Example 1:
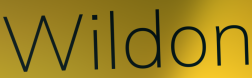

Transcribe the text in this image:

Wildon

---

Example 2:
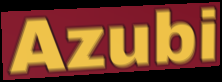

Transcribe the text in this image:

Azubi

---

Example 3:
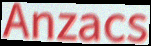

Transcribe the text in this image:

Anzacs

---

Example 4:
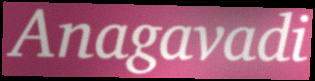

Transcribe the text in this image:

Anagavadi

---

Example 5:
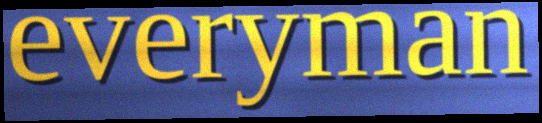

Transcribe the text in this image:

everyman